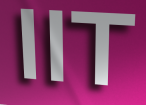
IIT